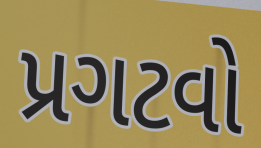
પ્રગટવો